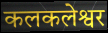
कलकलेश्वर